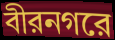
বীরনগরে